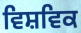
ਵਿਸ਼ਵਿਕ